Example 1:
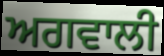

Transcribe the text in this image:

ਅਗਵਾਲੀ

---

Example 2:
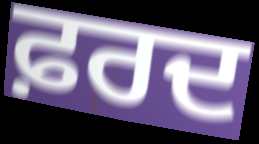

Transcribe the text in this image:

ਫ਼ਰਦ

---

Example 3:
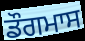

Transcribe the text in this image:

ਡੌਗਮਾਸ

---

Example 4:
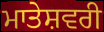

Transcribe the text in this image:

ਮਾਤੇਸ਼ਵਰੀ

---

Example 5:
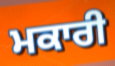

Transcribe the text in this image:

ਮਕਾਰੀ